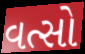
વત્સો